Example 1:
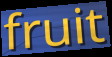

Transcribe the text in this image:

fruit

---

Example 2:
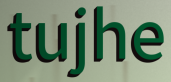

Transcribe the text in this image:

tujhe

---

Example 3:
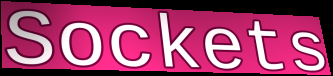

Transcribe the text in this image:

Sockets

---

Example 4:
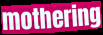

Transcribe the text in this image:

mothering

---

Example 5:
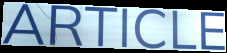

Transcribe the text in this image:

ARTICLE